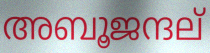
അബൂജന്ദല്